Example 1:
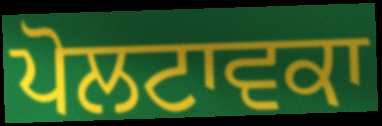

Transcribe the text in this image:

ਪੋਲਟਾਵਕਾ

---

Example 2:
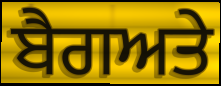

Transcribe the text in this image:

ਬੈਗਅਤੇ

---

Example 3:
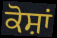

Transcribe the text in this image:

ਕੋਸ਼ਾਂ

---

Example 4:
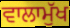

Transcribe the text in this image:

ਵਾਲਾਮੁੱਖ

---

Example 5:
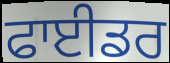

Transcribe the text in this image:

ਫਾਈਡਰ